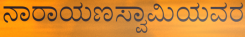
ನಾರಾಯಣಸ್ವಾಮಿಯವರ